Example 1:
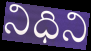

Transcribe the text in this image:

నిధిని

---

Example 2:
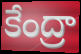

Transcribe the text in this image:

కేంద్రా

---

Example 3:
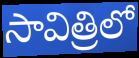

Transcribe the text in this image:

సావిత్రిలో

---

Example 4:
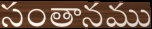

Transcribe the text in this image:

సంతానము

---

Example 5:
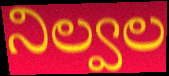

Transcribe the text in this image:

నిల్వల